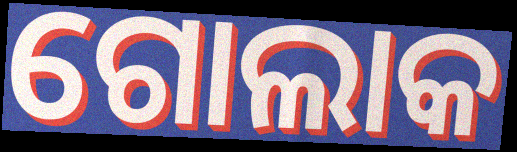
ଗୋଲାକ